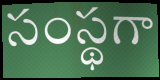
సంస్థగా